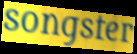
songster